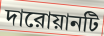
দারোয়ানটি